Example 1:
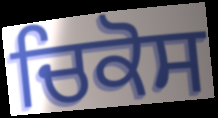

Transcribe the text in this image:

ਚਿਕੋਸ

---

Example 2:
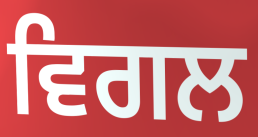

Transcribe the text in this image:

ਵਿਗਲ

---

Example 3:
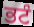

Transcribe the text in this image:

ਭਟੰ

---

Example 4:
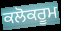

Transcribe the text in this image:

ਕਲੋਕਰੂਮ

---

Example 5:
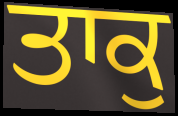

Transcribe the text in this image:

ਤਾਕੁ